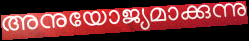
അനുയോജ്യമാക്കുന്നു